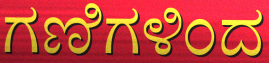
ಗಣಿಗಳಿಂದ